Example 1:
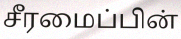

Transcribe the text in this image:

சீரமைப்பின்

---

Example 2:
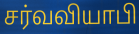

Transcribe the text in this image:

சர்வவியாபி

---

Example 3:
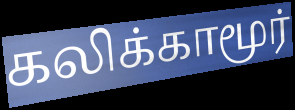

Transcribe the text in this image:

கலிக்காமூர்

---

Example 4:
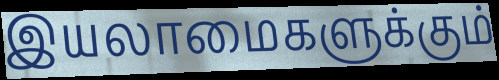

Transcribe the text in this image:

இயலாமைகளுக்கும்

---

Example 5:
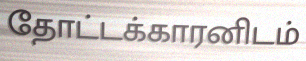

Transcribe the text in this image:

தோட்டக்காரனிடம்